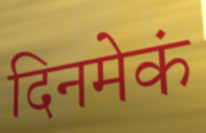
दिनमेकं